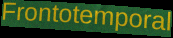
Frontotemporal